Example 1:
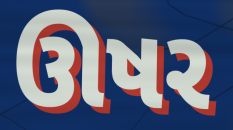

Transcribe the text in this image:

ઊષર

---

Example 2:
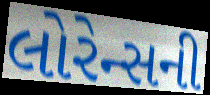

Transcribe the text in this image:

લોરેન્સની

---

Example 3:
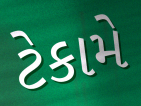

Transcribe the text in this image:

ટેકામે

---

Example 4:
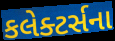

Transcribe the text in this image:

કલેક્ટર્સના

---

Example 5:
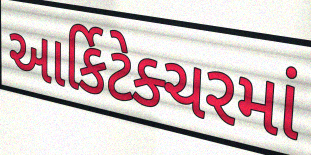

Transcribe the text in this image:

આર્કિટેક્ચરમાં